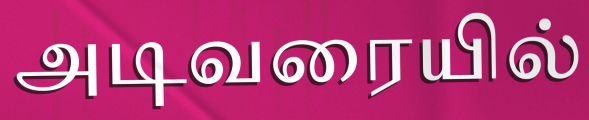
அடிவரையில்